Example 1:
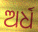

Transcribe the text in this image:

ଅର୍ଧ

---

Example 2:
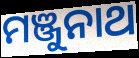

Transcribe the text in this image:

ମଞ୍ଜୁନାଥ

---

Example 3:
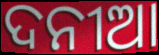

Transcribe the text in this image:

ଦନୀଆ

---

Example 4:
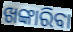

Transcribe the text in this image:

ଖଙ୍କାରିବା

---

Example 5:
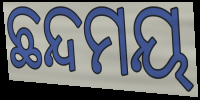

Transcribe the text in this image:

ଛନ୍ଦମୟ